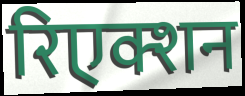
रिएक्शन